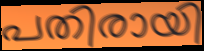
പതിരായി